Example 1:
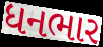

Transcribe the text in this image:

ધનભાર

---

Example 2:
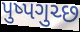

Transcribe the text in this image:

પુષ્પગુચ્છ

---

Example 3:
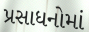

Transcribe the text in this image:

પ્રસાધનોમાં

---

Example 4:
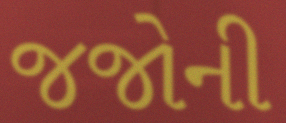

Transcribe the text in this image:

જજોની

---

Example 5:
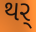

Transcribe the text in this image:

થર્